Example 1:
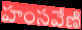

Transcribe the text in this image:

హంసవేణి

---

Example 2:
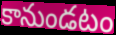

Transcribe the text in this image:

కానుండటం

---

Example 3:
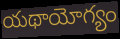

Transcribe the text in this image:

యథాయోగ్యం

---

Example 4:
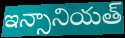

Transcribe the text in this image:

ఇన్సానియత్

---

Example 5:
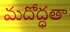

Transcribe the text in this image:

మదోద్ధతా